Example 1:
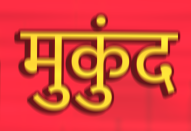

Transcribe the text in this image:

मुकुंद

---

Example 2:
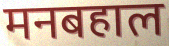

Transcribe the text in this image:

मनबहाल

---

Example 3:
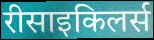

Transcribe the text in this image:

रीसाइकिलर्स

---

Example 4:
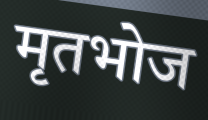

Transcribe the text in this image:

मृतभोज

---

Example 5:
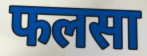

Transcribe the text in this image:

फलसा